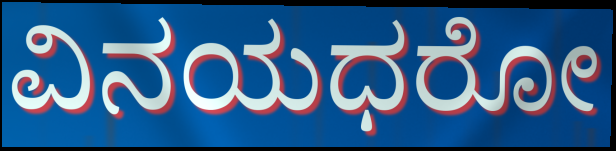
ವಿನಯಧರೋ